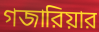
গজারিয়ার